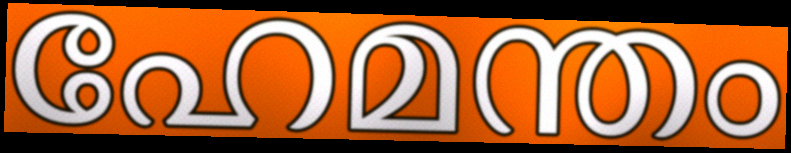
ഹേമന്തം